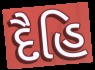
દૈહિ